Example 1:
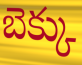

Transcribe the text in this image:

బెక్కు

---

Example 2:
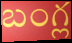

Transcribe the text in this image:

బంగ్ల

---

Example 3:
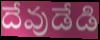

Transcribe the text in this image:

దేవుడేడి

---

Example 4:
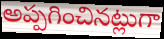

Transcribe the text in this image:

అప్పగించినట్లుగా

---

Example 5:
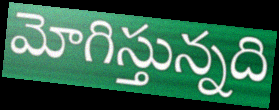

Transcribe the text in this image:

మోగిస్తున్నది